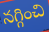
నగ్గించి